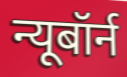
न्यूबॉर्न